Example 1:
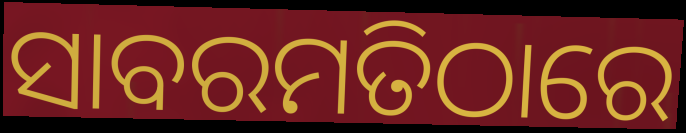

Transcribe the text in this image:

ସାବରମତିଠାରେ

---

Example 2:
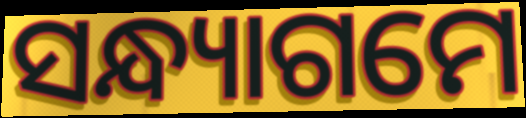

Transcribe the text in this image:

ସନ୍ଧ୍ୟାଗମେ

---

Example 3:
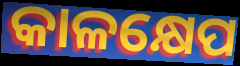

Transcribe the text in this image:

କାଳକ୍ଷେପ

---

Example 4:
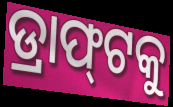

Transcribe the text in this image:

ଡ୍ରାଫ୍‌ଟକୁ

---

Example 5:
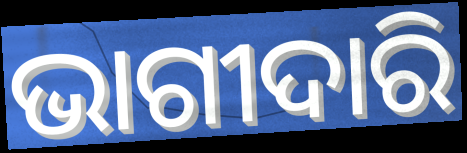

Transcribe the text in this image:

ଭାଗୀଦାରି